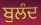
ਬੁਲੰਦ